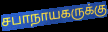
சபாநாயகருக்கு